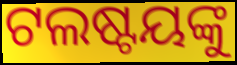
ଟଲଷ୍ଟୟଙ୍କୁ